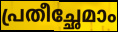
പ്രതീച്ഛേമാം